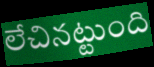
లేచినట్టుంది